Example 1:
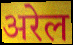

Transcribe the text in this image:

अरेल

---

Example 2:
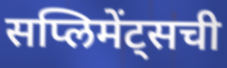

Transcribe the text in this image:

सप्लिमेंट्सची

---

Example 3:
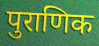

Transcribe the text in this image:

पुराणिक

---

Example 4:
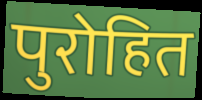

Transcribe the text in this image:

पुरोहित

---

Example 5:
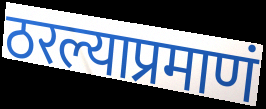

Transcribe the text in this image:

ठरल्याप्रमाणं